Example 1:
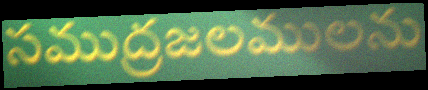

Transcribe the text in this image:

సముద్రజలములను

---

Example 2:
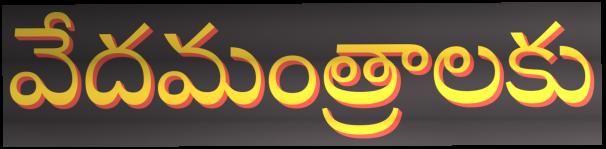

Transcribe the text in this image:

వేదమంత్రాలకు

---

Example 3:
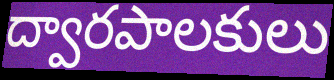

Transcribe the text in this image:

ద్వారపాలకులు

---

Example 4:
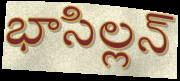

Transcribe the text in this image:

భాసిల్లన్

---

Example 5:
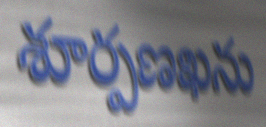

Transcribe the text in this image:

శూర్పణఖను